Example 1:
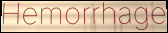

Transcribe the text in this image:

Hemorrhage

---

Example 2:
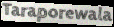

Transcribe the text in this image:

Taraporewala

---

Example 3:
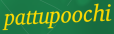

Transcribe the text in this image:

pattupoochi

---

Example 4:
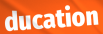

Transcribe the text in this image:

ducation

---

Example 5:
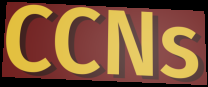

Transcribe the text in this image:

CCNs